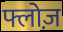
फ्लोज़